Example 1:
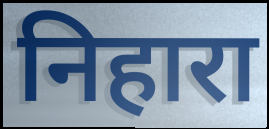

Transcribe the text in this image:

निहारा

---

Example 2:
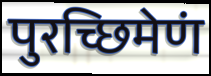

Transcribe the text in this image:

पुरच्छिमेणं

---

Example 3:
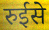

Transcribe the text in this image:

रुईसे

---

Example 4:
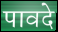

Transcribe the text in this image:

पावदे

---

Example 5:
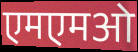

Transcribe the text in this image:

एमएमओ